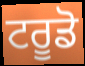
ਟਰੂਡੋ